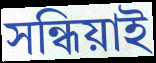
সন্ধিয়াই